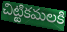
చిట్టికమలకి